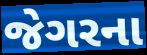
જેગરના